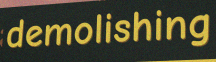
demolishing